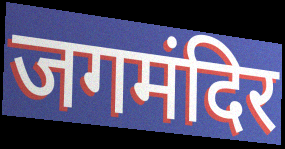
जगमंदिर